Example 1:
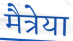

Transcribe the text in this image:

मैत्रेया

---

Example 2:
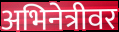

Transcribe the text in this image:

अभिनेत्रीवर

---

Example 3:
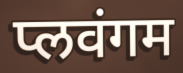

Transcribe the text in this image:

प्लवंगम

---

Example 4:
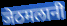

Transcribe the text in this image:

जेठमलानी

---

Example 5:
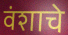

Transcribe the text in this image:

वंशाचे